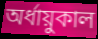
অর্ধায়ুকাল